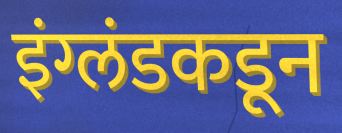
इंग्लंडकडून